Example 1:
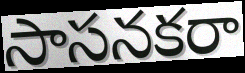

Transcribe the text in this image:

సాసనకరా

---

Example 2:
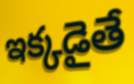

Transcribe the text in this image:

ఇక్కడైతే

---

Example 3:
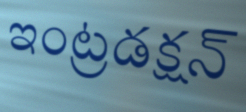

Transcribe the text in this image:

ఇంట్రడక్షన్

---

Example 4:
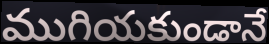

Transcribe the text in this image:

ముగియకుండానే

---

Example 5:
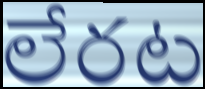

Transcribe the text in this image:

లేరట